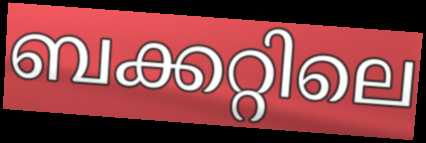
ബക്കറ്റിലെ